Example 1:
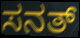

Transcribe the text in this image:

ಸನತ್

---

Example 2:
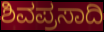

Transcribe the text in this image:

ಶಿವಪ್ರಸಾದಿ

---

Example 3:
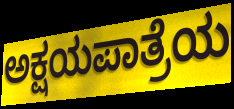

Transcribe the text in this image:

ಅಕ್ಷಯಪಾತ್ರೆಯ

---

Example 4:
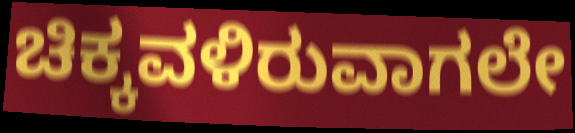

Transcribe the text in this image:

ಚಿಕ್ಕವಳಿರುವಾಗಲೇ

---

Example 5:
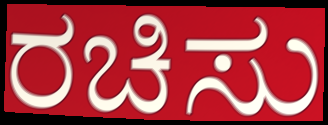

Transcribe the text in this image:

ರಚಿಸು